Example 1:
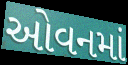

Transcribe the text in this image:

ઓવનમાં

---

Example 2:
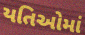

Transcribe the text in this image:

યતિઓમાં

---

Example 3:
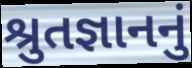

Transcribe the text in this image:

શ્રુતજ્ઞાનનું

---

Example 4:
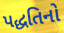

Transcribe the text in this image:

પદ્ધતિનો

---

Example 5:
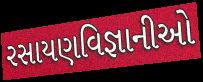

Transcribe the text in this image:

રસાયણવિજ્ઞાનીઓ